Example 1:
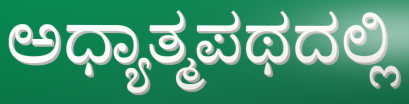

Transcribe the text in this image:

ಅಧ್ಯಾತ್ಮಪಥದಲ್ಲಿ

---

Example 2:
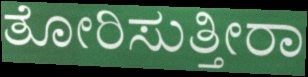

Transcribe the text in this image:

ತೋರಿಸುತ್ತೀರಾ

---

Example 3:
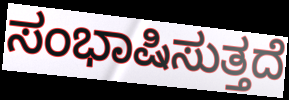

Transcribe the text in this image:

ಸಂಭಾಷಿಸುತ್ತದೆ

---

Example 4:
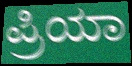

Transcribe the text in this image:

ಪ್ರಿಯಾ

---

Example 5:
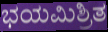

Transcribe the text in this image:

ಭಯಮಿಶ್ರಿತ